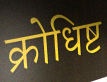
क्रोधिष्ट